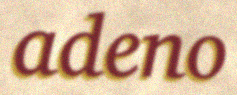
adeno